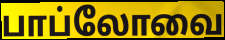
பாப்லோவை